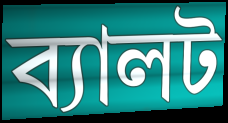
ব্যালট